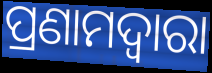
ପ୍ରଣାମଦ୍ୱାରା